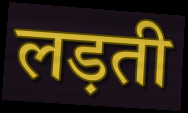
लड़ती